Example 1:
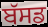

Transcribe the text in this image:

ਬੱਸਡ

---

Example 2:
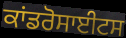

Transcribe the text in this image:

ਕਾਂਡਰੋਸਾਈਟਸ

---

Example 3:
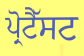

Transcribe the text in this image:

ਪ੍ਰੋਟੈੱਸਟ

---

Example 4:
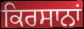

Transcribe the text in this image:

ਕਿਰਸਾਨਾਂ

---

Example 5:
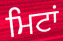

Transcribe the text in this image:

ਮਿਟਾਂ